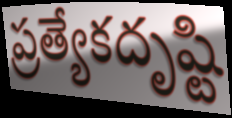
ప్రత్యేకదృష్టి